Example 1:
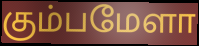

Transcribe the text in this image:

கும்பமேளா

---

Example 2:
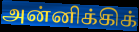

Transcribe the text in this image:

அன்னிக்கிக்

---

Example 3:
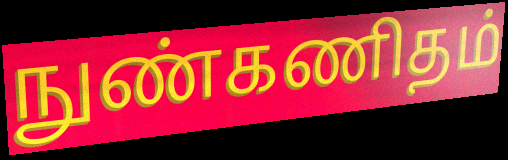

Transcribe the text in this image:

நுண்கணிதம்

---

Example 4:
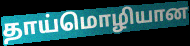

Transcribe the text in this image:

தாய்மொழியான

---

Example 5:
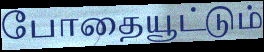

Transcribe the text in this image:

போதையூட்டும்